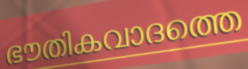
ഭൗതികവാദത്തെ